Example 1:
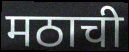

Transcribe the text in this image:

मठाची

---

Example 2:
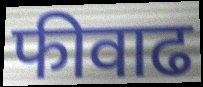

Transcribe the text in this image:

फीवाढ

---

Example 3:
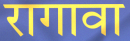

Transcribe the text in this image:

रागावा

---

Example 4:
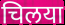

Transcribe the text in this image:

चिलया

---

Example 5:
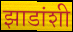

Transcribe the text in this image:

झाडांशी